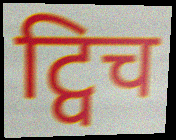
ट्विच